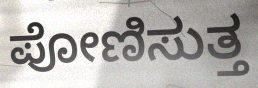
ಪೋಣಿಸುತ್ತ